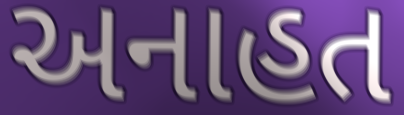
અનાહત